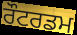
ਰੌਟਰਡਮ